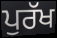
ਪੁਰੱਖ